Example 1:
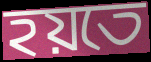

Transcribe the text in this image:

হয়তে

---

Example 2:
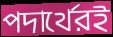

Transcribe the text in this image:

পদার্থেরই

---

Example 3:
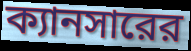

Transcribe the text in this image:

ক্যানসারের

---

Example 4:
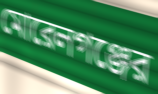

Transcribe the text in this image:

মোরেলগঞ্জের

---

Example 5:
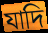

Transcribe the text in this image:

যাদি